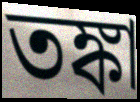
তঙ্কা